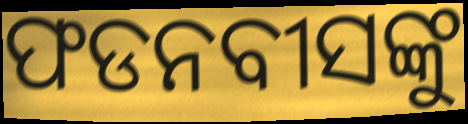
ଫଡନବୀସଙ୍କୁ